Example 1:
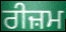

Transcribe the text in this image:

ਰੀਜ਼ਮ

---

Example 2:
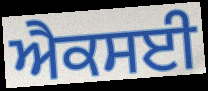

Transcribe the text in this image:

ਐਕਸਈ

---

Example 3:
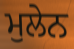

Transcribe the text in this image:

ਮੁਲੇਨ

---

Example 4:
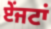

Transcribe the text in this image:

ਏਂਜਟਾਂ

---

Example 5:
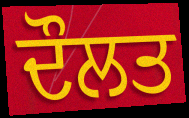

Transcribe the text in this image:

ਦੌਲਤ